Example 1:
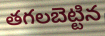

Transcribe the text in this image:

తగలబెట్టిన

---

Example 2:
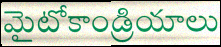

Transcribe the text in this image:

మైటోకాండ్రియాలు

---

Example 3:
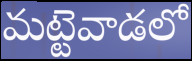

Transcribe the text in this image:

మట్టెవాడలో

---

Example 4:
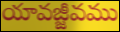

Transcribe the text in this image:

యావజ్జీవము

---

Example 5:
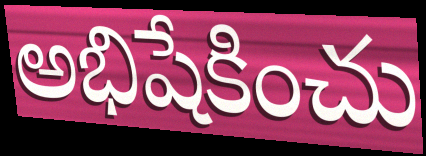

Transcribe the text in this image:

అభిషేకించు